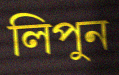
লিপুন